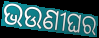
ଭଉଣୀଘର